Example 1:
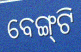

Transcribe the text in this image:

ବେଙ୍ଗ୍‌ଟି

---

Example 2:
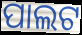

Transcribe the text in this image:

ପାଲଟ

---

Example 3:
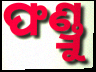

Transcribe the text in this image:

ଫଣ୍ଡ୍ରୁ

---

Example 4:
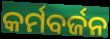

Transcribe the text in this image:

କର୍ମବର୍ଜନ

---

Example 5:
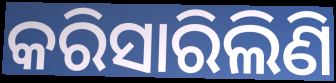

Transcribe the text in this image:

କରିସାରିଲିଣି